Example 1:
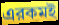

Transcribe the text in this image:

এরকমই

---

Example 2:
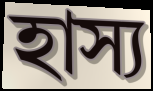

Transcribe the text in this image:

হাস্য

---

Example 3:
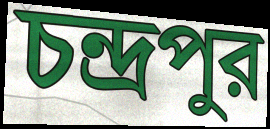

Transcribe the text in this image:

চন্দ্রপুর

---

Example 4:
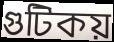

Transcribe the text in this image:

গুটিকয়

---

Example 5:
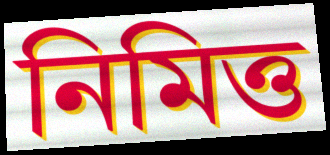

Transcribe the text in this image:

নিমিত্ত